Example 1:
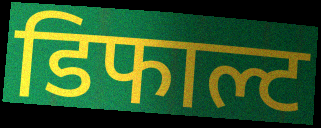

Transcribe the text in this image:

डिफाल्ट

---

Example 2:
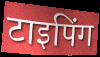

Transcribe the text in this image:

टाइपिंग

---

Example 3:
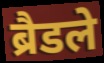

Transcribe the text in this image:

ब्रैडले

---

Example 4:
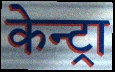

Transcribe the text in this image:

केन्ट्रा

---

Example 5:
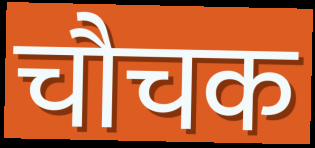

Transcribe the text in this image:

चौचक